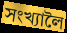
সংখ্যালৈ